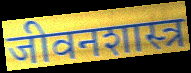
जीवनशास्त्र